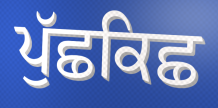
ਪੁੱਛਕਿਛ